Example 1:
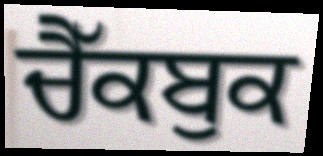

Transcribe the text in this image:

ਚੈੱਕਬੁਕ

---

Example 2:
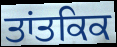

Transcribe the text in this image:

ਤਾਂਤਕਿਕ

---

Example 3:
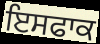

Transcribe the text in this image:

ਇਸਫਾਕ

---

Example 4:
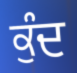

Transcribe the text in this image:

ਕੁੰਦ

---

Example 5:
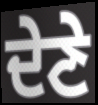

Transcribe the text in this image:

ਦੇਣੇ